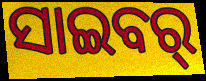
ସାଇବର୍